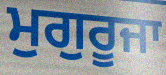
ਮੁਗੁਰੂਜਾ